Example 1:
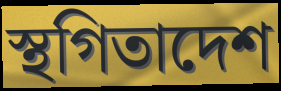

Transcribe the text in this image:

স্থগিতাদেশ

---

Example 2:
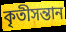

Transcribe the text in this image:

কৃতীসন্তান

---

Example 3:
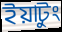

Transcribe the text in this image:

ইয়াটুং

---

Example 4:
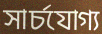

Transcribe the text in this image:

সার্চযোগ্য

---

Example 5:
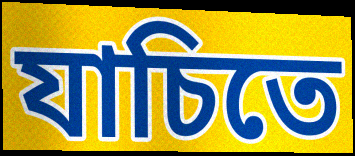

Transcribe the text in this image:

যাচিতে